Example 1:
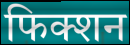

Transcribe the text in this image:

फिक्शन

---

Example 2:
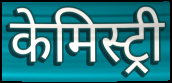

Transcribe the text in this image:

केमिस्ट्री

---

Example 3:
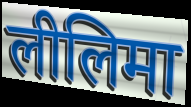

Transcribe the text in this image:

लीलिमा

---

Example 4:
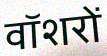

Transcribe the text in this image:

वॉशरों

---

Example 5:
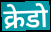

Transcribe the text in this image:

क्रेडो